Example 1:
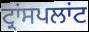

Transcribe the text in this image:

ਟ੍ਰਾਂਸਪਲਾਂਟ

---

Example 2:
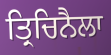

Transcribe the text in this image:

ਤ੍ਰਿਚਿਨੈਲਾ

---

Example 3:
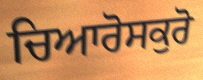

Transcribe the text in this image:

ਚਿਆਰੋਸਕੁਰੋ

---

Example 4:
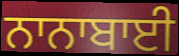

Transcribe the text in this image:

ਨਾਨਾਬਾਈ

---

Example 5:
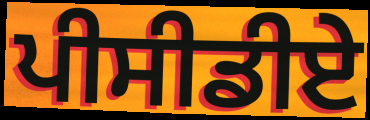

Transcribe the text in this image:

ਪੀਸੀਡੀਏ